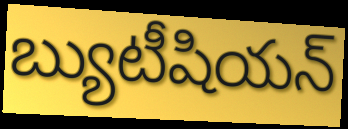
బ్యుటీషియన్